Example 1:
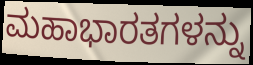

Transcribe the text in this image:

ಮಹಾಭಾರತಗಳನ್ನು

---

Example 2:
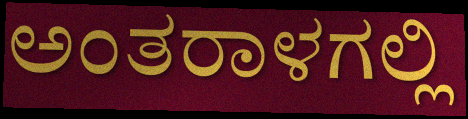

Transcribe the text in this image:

ಅಂತರಾಳಗಲ್ಲಿ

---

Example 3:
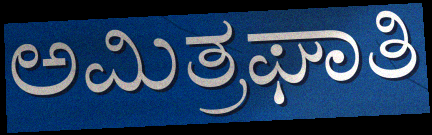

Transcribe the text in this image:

ಅಮಿತ್ರಘಾತಿ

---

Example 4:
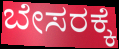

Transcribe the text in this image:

ಬೇಸರಕ್ಕೆ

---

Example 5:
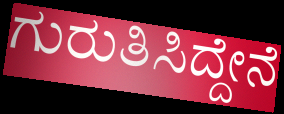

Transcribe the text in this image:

ಗುರುತಿಸಿದ್ದೇನೆ